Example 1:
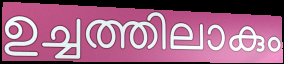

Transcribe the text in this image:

ഉച്ചത്തിലാകും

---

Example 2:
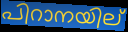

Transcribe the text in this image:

പിറാനയില്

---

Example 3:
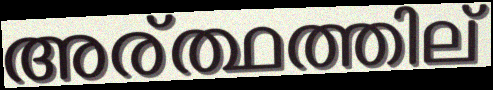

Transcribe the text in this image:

അര്ത്ഥത്തില്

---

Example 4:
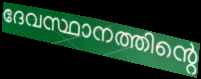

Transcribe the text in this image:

ദേവസ്ഥാനത്തിന്റെ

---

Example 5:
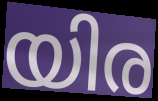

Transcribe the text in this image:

യിര